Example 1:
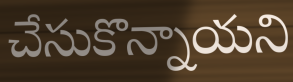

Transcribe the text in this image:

చేసుకొన్నాయని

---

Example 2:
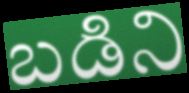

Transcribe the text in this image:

బడిని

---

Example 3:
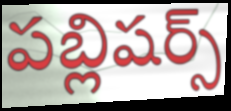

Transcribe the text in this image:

పబ్లిషర్స్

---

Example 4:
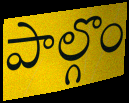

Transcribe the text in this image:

పాల్గొం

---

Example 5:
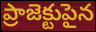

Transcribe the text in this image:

ప్రాజెక్టుపైన